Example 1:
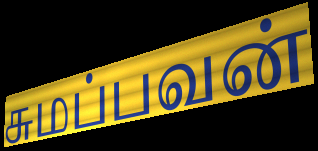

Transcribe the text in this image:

சுமப்பவன்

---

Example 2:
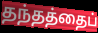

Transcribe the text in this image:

தந்தத்தைப்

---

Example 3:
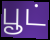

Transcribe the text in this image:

பூட்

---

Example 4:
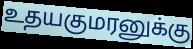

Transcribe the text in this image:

உதயகுமரனுக்கு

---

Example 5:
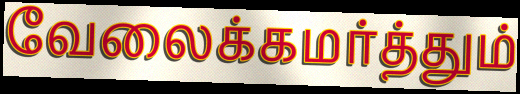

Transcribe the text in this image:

வேலைக்கமர்த்தும்